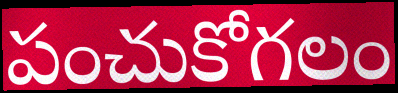
పంచుకోగలం